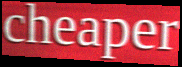
cheaper